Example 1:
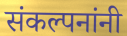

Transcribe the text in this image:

संकल्पनांनी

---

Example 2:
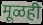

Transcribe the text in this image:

मूळही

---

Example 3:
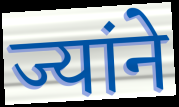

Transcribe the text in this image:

ज्यांने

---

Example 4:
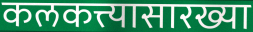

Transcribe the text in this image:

कलकत्त्यासारख्या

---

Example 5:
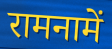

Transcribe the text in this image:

रामनामें